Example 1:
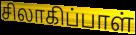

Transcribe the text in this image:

சிலாகிப்பாள்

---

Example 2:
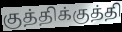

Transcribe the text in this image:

குத்திக்குத்தி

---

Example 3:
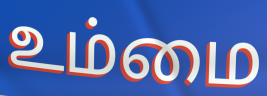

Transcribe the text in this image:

உம்மை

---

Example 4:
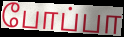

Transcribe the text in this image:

போப்பா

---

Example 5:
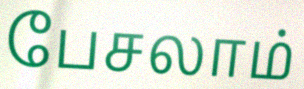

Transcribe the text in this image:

பேசலாம்